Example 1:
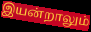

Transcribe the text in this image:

இயன்றாலும்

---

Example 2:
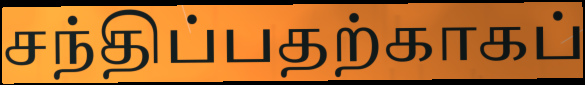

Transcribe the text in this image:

சந்திப்பதற்காகப்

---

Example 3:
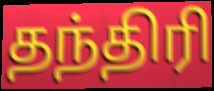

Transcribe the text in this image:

தந்திரி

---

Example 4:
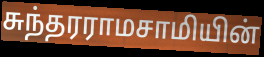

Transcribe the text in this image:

சுந்தரராமசாமியின்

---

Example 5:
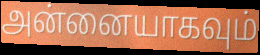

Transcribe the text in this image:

அன்னையாகவும்